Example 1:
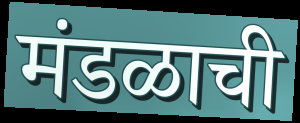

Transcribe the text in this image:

मंडळाची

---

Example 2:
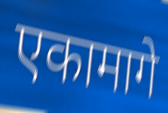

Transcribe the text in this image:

एकामागे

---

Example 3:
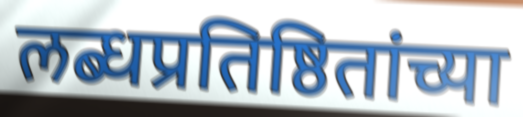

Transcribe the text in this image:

लब्धप्रतिष्ठितांच्या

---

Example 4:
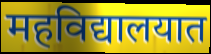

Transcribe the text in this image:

महविद्यालयात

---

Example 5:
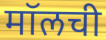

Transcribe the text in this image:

मॉलची